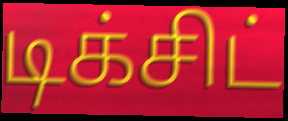
டிக்சிட்